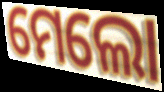
ମେଲୋ